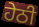
ਹੇਠੀ